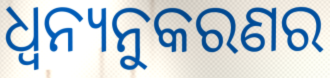
ଧ୍ବନ୍ୟନୁକରଣର